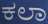
ಕಲಾ